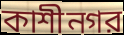
কাশীনগর